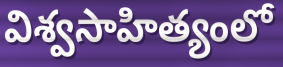
విశ్వసాహిత్యంలో